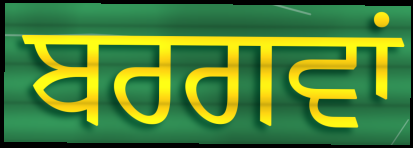
ਬਰਗਵਾਂ